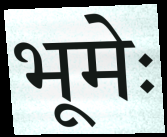
भूमेः